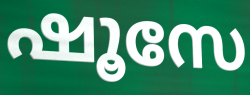
ഷൂസേ